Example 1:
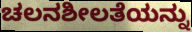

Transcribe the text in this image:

ಚಲನಶೀಲತೆಯನ್ನು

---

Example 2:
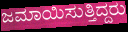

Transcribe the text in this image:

ಜಮಾಯಿಸುತ್ತಿದ್ದರು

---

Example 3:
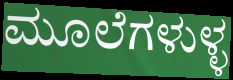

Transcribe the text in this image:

ಮೂಲೆಗಳುಳ್ಳ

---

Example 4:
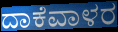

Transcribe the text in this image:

ದಾಕೆವಾಳರ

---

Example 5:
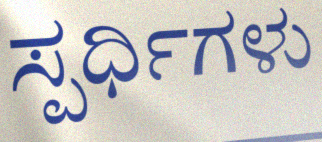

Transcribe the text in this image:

ಸ್ಪರ್ಧಿಗಳು